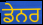
ਡੇਨਰ